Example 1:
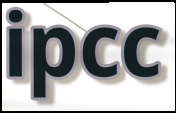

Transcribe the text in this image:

ipcc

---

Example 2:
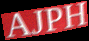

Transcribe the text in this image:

AJPH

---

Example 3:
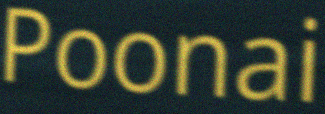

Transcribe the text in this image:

Poonai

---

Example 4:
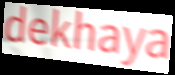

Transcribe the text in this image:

dekhaya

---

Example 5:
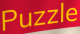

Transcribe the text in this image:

Puzzle